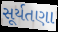
સૂર્યતણા